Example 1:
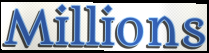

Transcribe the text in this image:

Millions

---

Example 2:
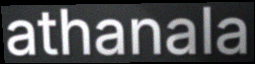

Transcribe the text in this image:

athanala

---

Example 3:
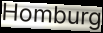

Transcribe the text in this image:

Homburg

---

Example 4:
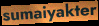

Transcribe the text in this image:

sumaiyakter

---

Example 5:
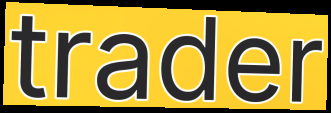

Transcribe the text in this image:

trader